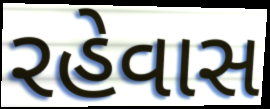
રહેવાસ